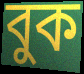
বুক